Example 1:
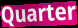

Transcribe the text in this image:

Quarter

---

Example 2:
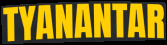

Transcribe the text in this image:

TYANANTAR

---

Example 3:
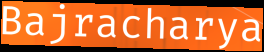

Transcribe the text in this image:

Bajracharya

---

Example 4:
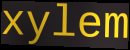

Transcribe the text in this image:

xylem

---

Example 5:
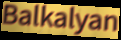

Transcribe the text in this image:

Balkalyan